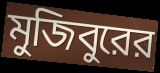
মুজিবুরের